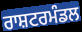
ਰਾਸ਼ਟਰਮੰਡਲ